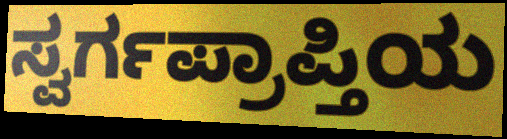
ಸ್ವರ್ಗಪ್ರಾಪ್ತಿಯ